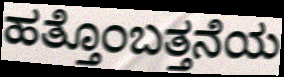
ಹತ್ತೊಂಬತ್ತನೆಯ